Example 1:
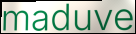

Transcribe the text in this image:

maduve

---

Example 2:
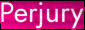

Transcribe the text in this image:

Perjury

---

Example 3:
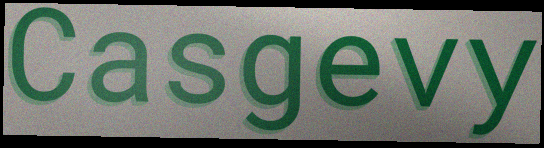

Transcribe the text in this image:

Casgevy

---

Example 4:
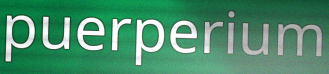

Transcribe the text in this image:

puerperium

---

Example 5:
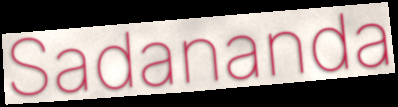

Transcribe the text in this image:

Sadananda